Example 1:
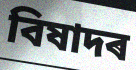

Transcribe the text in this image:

বিষাদৰ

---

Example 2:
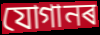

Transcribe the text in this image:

যোগানৰ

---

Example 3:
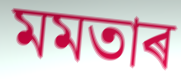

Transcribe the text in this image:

মমতাৰ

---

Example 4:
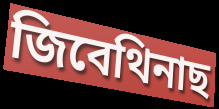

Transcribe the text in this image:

জিবেথিনাছ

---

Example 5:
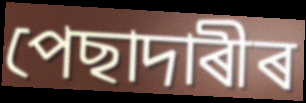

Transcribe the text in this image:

পেছাদাৰীৰ